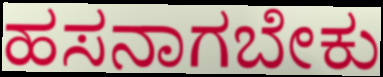
ಹಸನಾಗಬೇಕು